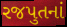
રજપુતનાં